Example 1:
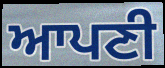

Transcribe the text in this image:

ਆਪਣੀ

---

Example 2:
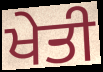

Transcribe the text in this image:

ਖੇਤੀ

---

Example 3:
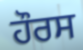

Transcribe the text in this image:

ਹੌਰਸ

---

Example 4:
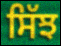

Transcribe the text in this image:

ਸਿੱਝ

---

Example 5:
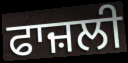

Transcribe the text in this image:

ਫਾਜ਼ਲੀ